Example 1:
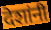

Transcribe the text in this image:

देशांनी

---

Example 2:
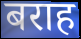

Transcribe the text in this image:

बराह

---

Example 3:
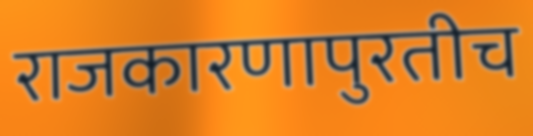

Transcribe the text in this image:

राजकारणापुरतीच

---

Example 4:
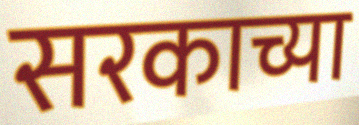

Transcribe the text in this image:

सरकाच्या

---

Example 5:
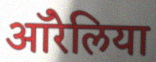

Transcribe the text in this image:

ऑरेलिया